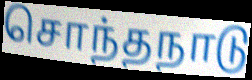
சொந்தநாடு